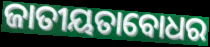
ଜାତୀୟତାବୋଧର